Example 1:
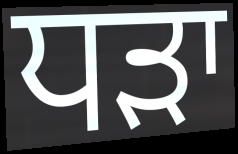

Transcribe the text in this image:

ਧੜਾ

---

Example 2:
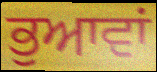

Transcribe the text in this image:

ਭੁਆਵਾਂ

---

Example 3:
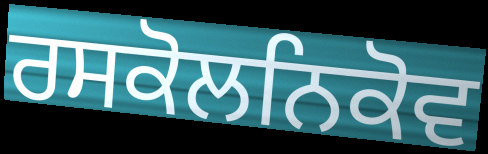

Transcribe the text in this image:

ਰਸਕੋਲਨਿਕੋਵ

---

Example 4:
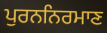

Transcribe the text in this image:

ਪੁਰਨਨਿਰਮਾਣ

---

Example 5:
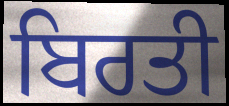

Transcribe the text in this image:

ਬਿਰਤੀ